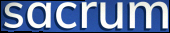
sacrum